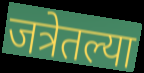
जत्रेतल्या